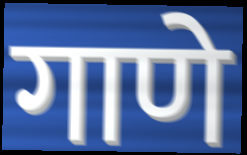
गाणे